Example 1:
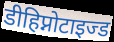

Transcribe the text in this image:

डीहिप्नोटाइज्ड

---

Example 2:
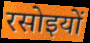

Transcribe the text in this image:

रसोइयों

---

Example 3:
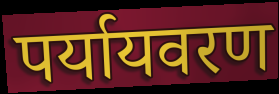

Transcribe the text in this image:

पर्यायवरण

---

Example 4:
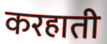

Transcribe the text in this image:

करहाती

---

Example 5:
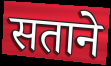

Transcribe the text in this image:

सताने